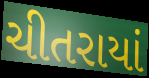
ચીતરાયાં